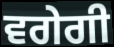
ਵਗੇਗੀ